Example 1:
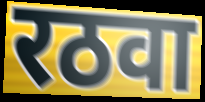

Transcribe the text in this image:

रठवा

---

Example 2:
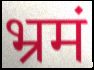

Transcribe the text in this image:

भ्रमं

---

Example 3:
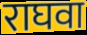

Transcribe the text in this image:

राघवा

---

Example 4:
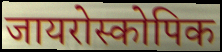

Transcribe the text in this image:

जायरोस्कोपिक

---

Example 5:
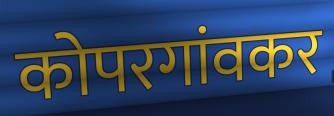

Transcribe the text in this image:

कोपरगांवकर